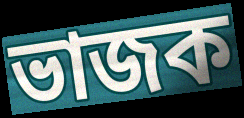
ভাজক